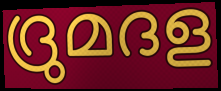
ദ്രുമദള